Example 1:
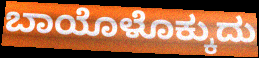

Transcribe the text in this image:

ಬಾಯೊಳೊಕ್ಕುದು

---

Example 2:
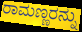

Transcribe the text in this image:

ರಾಮಣ್ಣರನ್ನು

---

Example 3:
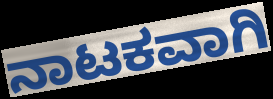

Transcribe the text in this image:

ನಾಟಕವಾಗಿ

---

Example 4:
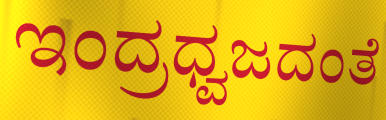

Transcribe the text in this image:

ಇಂದ್ರಧ್ವಜದಂತೆ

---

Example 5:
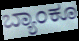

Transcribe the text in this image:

ಬ್ಯಾಂಕೂ